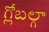
గ్లోబల్గా